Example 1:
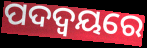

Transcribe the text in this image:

ପଦଦ୍ୱୟରେ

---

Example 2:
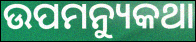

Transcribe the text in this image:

ଉପମନ୍ୟୁକଥା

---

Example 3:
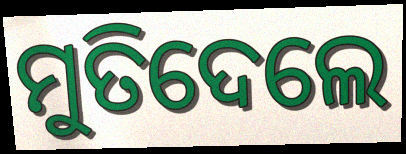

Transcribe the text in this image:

ମୁତିଦେଲେ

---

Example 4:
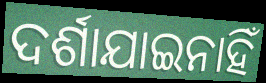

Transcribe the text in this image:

ଦର୍ଶାଯାଇନାହିଁ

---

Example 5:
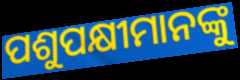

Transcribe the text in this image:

ପଶୁପକ୍ଷୀମାନଙ୍କୁ